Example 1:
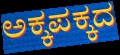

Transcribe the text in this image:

ಅಕ್ಕಪಕ್ಕದ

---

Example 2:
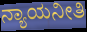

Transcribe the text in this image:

ನ್ಯಾಯನೀತಿ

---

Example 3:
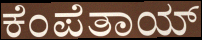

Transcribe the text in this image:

ಕೆಂಪೆತಾಯ್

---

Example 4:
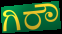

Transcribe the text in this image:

ಗಿರೌ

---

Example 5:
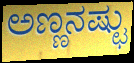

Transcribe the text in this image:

ಅಣ್ಣನಷ್ಟು